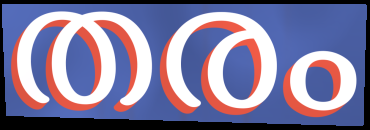
തരം